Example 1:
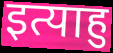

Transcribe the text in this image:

इत्याहु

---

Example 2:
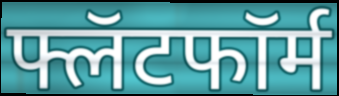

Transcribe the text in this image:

फ्लॅटफॉर्म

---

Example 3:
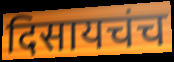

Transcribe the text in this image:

दिसायचंच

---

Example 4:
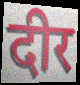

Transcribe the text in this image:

दीर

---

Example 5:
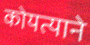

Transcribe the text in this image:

कोयत्याने